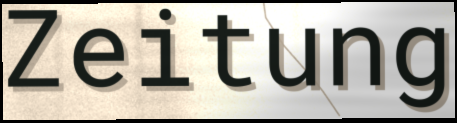
Zeitung